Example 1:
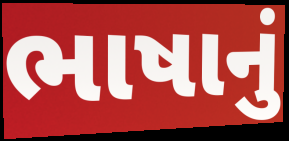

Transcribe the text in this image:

ભાષાનું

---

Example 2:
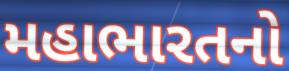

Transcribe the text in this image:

મહાભારતનો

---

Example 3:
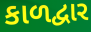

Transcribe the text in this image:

કાળદ્વાર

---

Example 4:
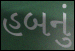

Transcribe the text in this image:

હબનું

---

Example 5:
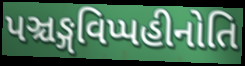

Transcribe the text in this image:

પઞ્ચઙ્ગવિપ્પહીનોતિ